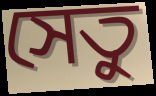
সেতু